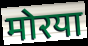
मोरया